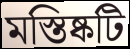
মস্তিষ্কটি